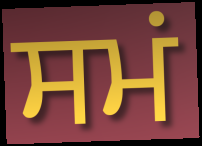
ਸਮਂ